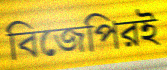
বিজেপিরই